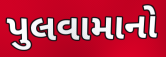
પુલવામાનો